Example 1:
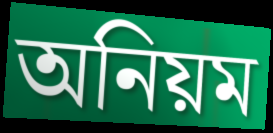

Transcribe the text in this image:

অনিয়ম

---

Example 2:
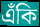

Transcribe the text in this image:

এঁকি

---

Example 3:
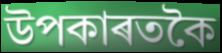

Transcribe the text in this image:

উপকাৰতকৈ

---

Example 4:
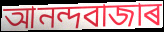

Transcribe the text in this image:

আনন্দবাজাৰ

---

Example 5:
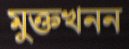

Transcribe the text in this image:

মুক্তখনন